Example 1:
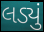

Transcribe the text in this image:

લડ્યું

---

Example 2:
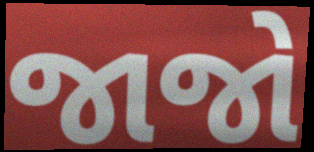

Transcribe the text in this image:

જાજો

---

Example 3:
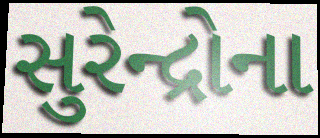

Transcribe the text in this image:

સુરેન્દ્રોના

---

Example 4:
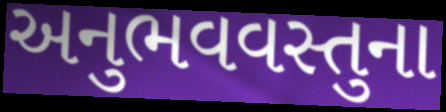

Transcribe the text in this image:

અનુભવવસ્તુના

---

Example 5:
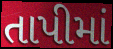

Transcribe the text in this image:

તાપીમાં